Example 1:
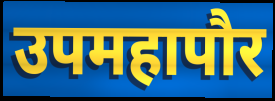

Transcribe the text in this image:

उपमहापौर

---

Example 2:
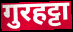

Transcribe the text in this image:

गुरहट्टा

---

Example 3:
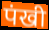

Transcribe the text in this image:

पंखी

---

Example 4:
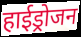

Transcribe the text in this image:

हाईड्रोजन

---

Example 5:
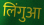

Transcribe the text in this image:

लिंगुआ